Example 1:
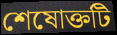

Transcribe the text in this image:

শেষোক্তটি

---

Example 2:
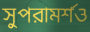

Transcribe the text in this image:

সুপরামর্শও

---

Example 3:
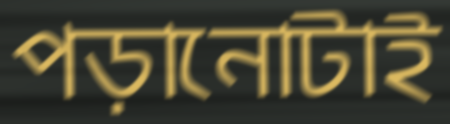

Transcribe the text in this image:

পড়ানোটাই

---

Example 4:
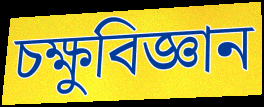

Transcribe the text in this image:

চক্ষুবিজ্ঞান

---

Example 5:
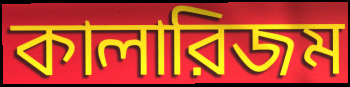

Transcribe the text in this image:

কালারিজম